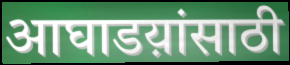
आघाडय़ांसाठी